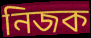
নিজক